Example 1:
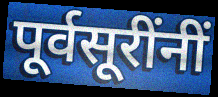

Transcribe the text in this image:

पूर्वसूरींनीं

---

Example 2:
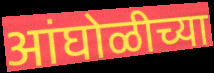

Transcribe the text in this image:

आंघोळीच्या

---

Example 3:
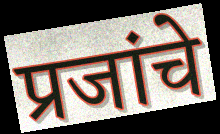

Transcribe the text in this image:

प्रजांचे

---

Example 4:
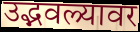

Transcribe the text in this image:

उद्भवल्यावर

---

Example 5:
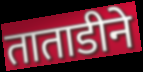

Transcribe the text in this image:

ताताडीने